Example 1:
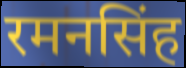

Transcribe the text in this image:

रमनसिंह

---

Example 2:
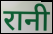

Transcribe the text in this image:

रानी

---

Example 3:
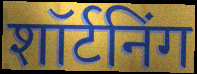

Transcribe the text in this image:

शॉर्टनिंग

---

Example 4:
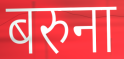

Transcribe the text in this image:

बरुना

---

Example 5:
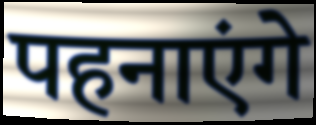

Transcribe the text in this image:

पहनाएंगे